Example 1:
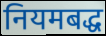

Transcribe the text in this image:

नियमबद्ध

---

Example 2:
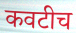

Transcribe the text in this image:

कवटीच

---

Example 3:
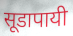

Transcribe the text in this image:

सूडापायी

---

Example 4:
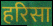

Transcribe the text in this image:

हरिसा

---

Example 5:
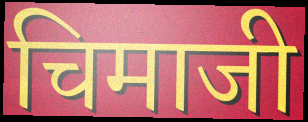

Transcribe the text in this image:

चिमाजी